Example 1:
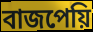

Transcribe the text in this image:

বাজপেয়ি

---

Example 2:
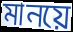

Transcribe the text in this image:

মানয়ে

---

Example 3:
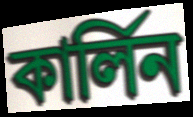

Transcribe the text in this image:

কার্লিন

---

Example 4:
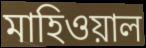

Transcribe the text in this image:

মাহিওয়াল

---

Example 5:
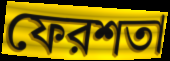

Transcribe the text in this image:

ফেরশতা